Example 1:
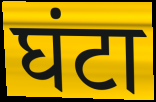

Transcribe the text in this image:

घंटा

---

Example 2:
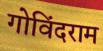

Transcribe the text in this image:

गोविंदराम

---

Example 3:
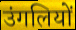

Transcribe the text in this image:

उंगलियों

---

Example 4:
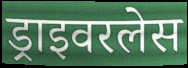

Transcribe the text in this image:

ड्राइवरलेस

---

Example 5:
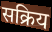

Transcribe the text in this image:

सक्रिय